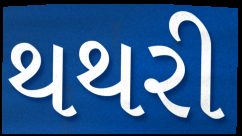
થથરી